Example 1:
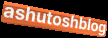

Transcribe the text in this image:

ashutoshblog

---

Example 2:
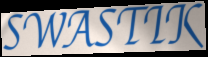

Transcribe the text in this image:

SWASTIK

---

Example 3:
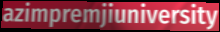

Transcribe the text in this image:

azimpremjiuniversity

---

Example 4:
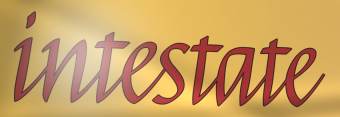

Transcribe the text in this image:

intestate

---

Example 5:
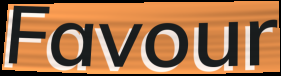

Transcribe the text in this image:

Favour